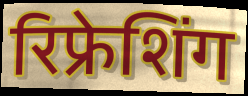
रिफ्रेशिंग